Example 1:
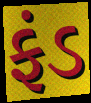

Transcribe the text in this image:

ફંડ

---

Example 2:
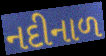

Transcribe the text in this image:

નદીનાળ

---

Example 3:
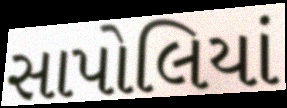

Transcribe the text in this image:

સાપોલિયાં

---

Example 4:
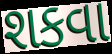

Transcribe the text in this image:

શકવા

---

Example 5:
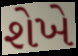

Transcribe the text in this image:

શેખે